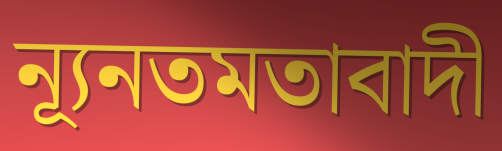
ন্যূনতমতাবাদী